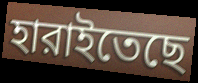
হারাইতেছে